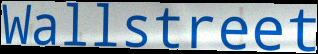
Wallstreet